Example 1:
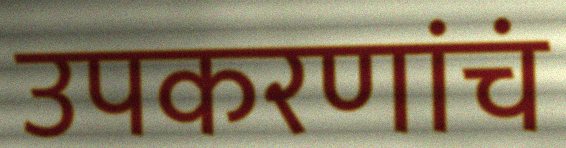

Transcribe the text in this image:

उपकरणांचं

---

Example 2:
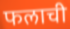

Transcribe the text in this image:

फलाची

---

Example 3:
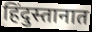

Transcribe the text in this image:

हिंदुस्तानात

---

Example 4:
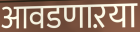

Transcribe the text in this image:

आवडणाऱया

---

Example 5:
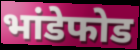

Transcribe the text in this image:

भांडेफोड